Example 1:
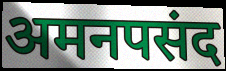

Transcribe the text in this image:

अमनपसंद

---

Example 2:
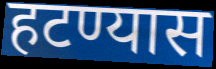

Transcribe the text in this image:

हटण्यास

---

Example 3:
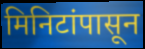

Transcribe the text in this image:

मिनिटांपासून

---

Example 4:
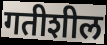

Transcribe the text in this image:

गतीशील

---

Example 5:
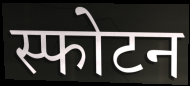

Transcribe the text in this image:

स्फोटन